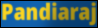
Pandiaraj